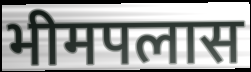
भीमपलास